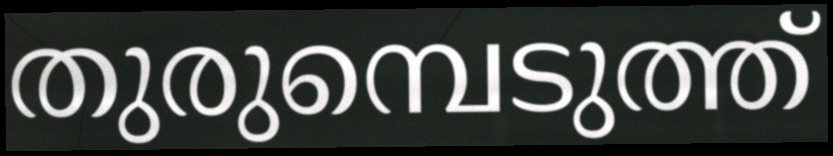
തുരുമ്പെടുത്ത്